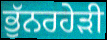
ਭੁੱਨਰਹੇੜੀ